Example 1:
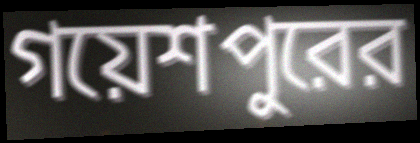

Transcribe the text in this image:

গয়েশপুরের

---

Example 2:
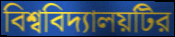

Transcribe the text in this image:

বিশ্ববিদ্যালয়টির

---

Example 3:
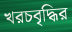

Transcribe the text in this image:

খরচবৃদ্ধির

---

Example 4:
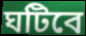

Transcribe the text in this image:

ঘটিবে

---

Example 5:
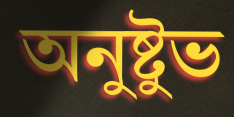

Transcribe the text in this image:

অনুষ্টুভ